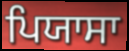
ਪਿਯਾਸਾ